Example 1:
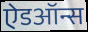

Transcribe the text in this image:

ऐडऑन्स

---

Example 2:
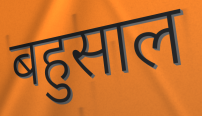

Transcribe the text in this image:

बहुसाल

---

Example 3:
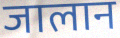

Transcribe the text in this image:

जालान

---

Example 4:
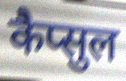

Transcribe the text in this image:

कैप्सुल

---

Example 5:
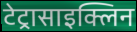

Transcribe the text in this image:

टेट्रासाइक्लिन